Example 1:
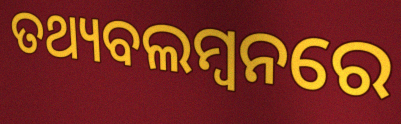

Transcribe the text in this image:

ତଥ୍ୟବଲମ୍ବନରେ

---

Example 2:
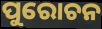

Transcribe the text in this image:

ପୁରୋଚନ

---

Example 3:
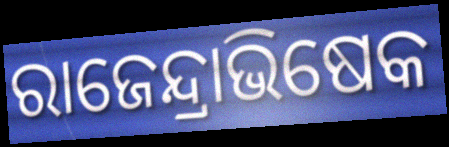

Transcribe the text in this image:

ରାଜେନ୍ଦ୍ରାଭିଷେକ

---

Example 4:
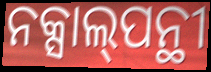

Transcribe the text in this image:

ନକ୍ସାଲ୍‌ପନ୍ଥୀ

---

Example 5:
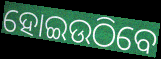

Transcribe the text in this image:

ହୋଇଉଠିବେ